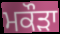
ਮਕੌੜਾ